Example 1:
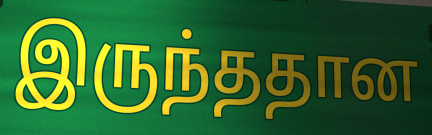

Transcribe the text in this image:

இருந்ததான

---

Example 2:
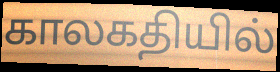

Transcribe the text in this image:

காலகதியில்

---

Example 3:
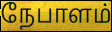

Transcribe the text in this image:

நேபாளம்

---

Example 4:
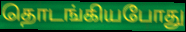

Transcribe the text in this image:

தொடங்கியபோது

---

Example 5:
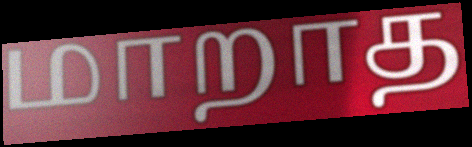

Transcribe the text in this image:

மாறாத